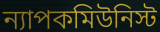
ন্যাপকমিউনিস্ট